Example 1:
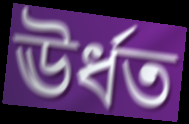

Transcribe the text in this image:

ঊৰ্ধত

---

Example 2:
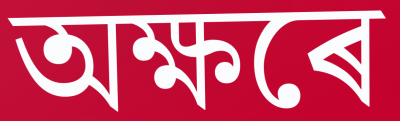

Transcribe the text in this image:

অক্ষৰে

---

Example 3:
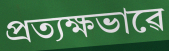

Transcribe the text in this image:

প্ৰত্যক্ষভাৱে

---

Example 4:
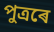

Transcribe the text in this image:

পুত্ৰৰে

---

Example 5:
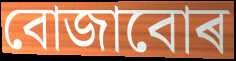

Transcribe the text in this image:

বোজাবোৰ